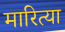
मारित्या